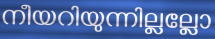
നീയറിയുന്നില്ലല്ലോ